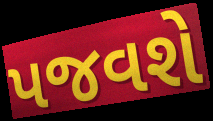
પજવશે